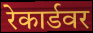
रेकार्डवर